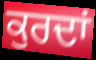
ਕੁਰਦਾਂ